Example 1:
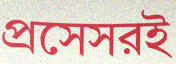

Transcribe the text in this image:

প্রসেসরই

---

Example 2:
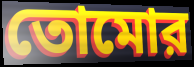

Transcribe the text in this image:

তোমোর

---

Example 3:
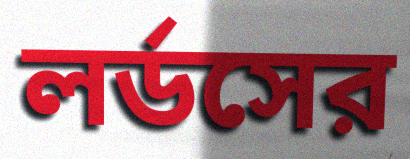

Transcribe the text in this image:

লর্ডসের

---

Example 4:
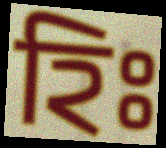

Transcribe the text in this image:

হিঃ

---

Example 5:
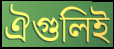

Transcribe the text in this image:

ঐগুলিই